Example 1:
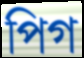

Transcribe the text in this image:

পিগ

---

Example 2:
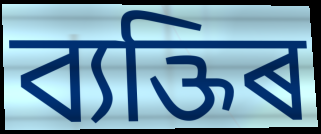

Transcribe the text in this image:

ব্যক্তিৰ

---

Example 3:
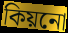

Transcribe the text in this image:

কিয়নো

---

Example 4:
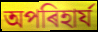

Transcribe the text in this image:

অপৰিহাৰ্য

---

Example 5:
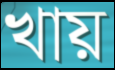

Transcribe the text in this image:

খায়